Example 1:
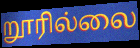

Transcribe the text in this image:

றூரில்லை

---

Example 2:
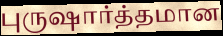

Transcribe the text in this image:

புருஷார்த்தமான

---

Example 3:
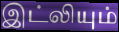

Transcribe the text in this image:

இட்லியும்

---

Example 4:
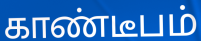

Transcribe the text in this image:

காண்டீபம்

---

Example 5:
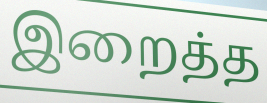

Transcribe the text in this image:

இறைத்த